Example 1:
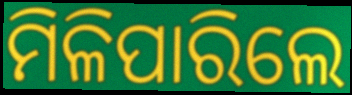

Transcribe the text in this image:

ମିଳିପାରିଲେ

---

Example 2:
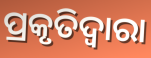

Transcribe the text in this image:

ପ୍ରକୃତିଦ୍ୱାରା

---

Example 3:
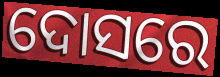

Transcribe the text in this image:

ଦୋସରେ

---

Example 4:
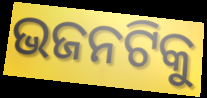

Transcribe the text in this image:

ଭଜନଟିକୁ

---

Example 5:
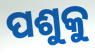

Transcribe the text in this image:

ପଶୁକୁ